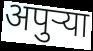
अपुर्‍या